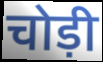
चोड़ी